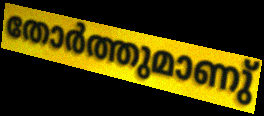
തോർത്തുമാണു്